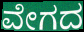
ವೇಗದ